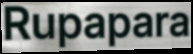
Rupapara